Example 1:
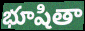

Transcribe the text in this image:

భూషితా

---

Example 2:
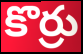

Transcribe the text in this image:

కొర్రు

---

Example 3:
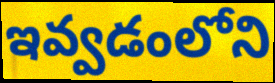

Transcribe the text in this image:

ఇవ్వడంలోని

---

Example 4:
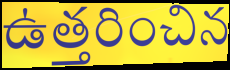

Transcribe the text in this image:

ఉత్తరించిన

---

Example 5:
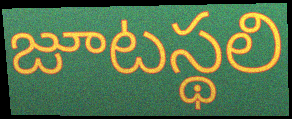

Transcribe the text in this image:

జూటస్థలి